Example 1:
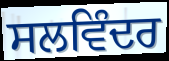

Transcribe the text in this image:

ਸਲਵਿੰਦਰ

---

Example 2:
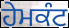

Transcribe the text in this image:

ਹੇਮਕੰਟ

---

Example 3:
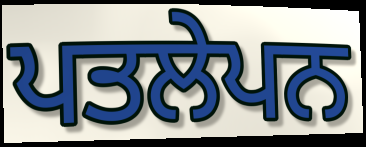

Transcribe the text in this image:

ਪਤਲੇਪਨ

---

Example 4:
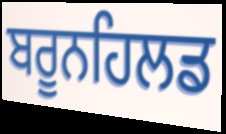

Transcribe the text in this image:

ਬਰੂਨਹਿਲਡ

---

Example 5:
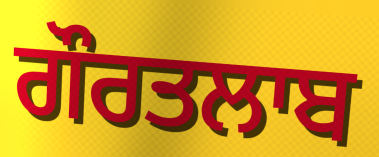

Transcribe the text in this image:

ਗੌਰਤਲਾਬ